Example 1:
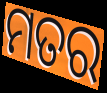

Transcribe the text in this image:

ମତର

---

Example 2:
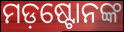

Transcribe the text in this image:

ମଡ଼ଷ୍ଟୋନଙ୍କ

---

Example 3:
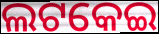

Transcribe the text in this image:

ଲଟକେଇ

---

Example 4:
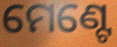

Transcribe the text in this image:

ମେଣ୍ଟେ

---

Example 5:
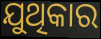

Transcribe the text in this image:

ଯୁଥିକାର